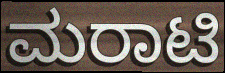
ಮರಾಟಿ